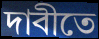
দাবীতে